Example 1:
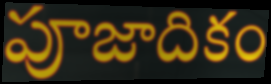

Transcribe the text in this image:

పూజాదికం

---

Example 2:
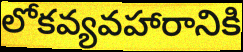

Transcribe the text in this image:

లోకవ్యవహారానికి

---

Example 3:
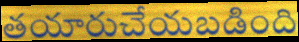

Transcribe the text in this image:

తయారుచేయబడింది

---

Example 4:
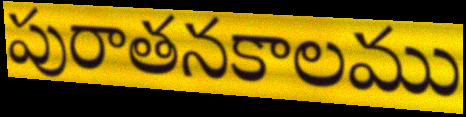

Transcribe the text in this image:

పురాతనకాలము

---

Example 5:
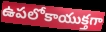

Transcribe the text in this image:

ఉపలోకాయుక్తగా